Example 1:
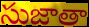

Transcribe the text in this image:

సుజాతా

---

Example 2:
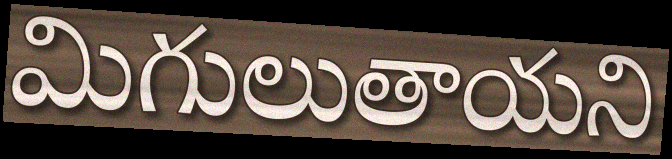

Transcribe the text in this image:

మిగులుతాయని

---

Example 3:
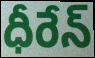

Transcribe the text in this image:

ధీరేన్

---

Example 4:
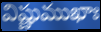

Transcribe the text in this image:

విష్ణుముఖాః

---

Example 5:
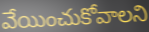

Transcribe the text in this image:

వేయించుకోవాలని